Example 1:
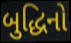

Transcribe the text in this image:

બુદ્ધિનો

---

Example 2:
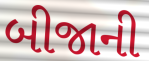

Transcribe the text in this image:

બીજાની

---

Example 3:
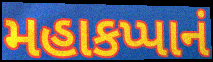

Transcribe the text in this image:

મહાકપ્પાનં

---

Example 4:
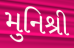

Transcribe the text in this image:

મુનિશ્રી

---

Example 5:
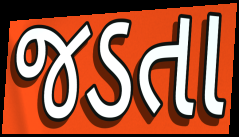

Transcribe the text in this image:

જડતા